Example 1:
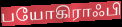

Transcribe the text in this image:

பயோகிராஃபி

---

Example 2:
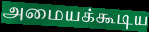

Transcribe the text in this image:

அமையக்கூடிய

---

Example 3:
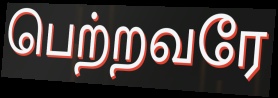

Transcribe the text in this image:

பெற்றவரே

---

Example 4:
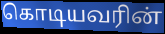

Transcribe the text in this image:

கொடியவரின்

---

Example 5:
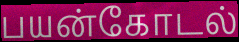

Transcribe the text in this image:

பயன்கோடல்